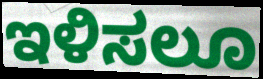
ಇಳಿಸಲೂ